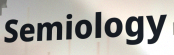
Semiology